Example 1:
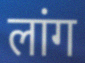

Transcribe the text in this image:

लांग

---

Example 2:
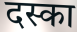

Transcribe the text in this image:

दस्का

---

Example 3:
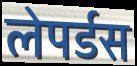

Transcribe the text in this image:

लेपर्डस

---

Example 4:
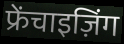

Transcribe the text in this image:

फ्रेंचाइज़िंग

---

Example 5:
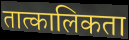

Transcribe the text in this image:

तात्कालिकता